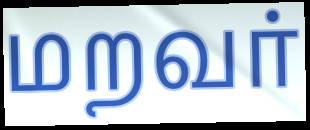
மறவர்